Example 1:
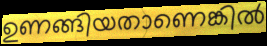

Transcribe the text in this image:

ഉണങ്ങിയതാണെങ്കിൽ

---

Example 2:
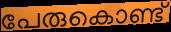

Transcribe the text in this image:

പേരുകൊണ്ട്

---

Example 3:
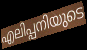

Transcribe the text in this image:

എലിപ്പനിയുടെ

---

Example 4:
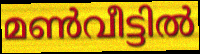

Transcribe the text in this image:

മൺവീട്ടിൽ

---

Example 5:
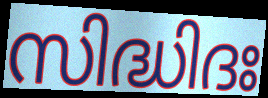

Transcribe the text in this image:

സിദ്ധിദഃ